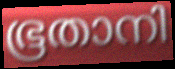
ഭൂതാനി